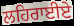
ਲਹਿਰਾਈਏ